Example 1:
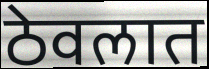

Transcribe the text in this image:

ठेवलात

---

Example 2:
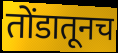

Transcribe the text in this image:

तोंडातूनच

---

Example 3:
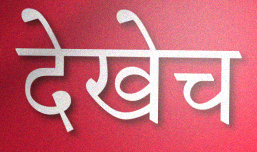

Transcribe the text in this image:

देखेच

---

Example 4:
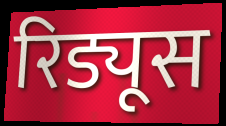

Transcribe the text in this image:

रिड्यूस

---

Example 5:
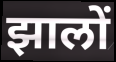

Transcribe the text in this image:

झालों